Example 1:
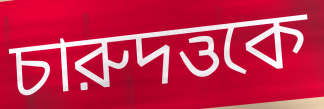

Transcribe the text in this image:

চারুদত্তকে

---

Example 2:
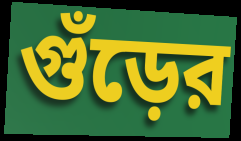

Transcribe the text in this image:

গুঁড়ের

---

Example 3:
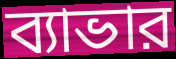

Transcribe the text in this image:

ব্যাভার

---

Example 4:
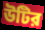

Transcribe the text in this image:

উটির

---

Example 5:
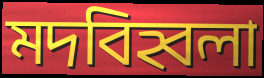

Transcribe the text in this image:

মদবিহ্বলা